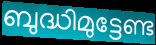
ബുദ്ധിമുട്ടേണ്ട